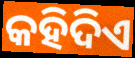
କହିଦିଏ